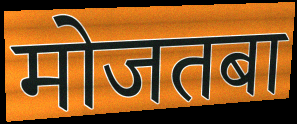
मोजतबा